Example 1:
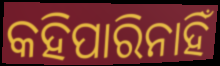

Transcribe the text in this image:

କହିପାରିନାହିଁ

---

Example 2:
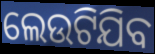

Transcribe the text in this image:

ଲେଉଟିଯିବ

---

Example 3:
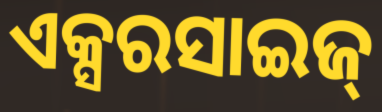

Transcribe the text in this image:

ଏକ୍ସରସାଇଜ୍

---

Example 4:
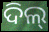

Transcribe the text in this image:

ଦିଲ୍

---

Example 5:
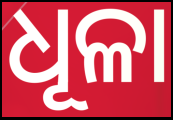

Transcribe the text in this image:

ଧୂଳା